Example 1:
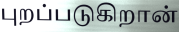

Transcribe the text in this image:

புறப்படுகிறான்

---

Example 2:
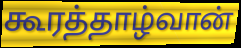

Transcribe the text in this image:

கூரத்தாழ்வான்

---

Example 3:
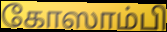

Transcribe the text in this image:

கோஸாம்பி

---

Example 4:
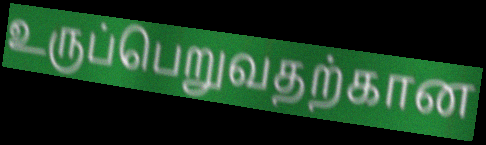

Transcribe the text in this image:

உருப்பெறுவதற்கான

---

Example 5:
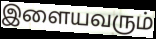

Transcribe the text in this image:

இளையவரும்